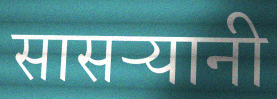
सासऱ्यानी